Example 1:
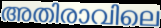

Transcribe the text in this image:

അതിരാവിലെ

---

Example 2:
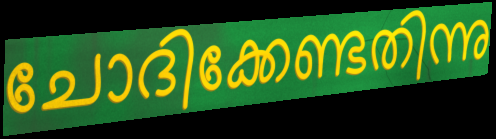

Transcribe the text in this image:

ചോദിക്കേണ്ടതിന്നു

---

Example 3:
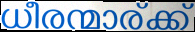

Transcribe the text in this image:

ധീരന്മാര്ക്ക്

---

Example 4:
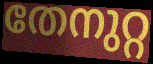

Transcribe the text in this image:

തേനുറ്റ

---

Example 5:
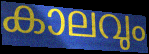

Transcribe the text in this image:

കാലവും